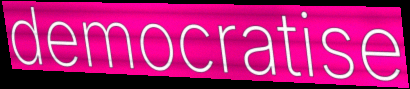
democratise